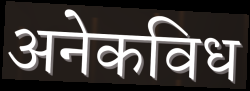
अनेकविध